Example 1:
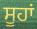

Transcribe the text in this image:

ਸੂਹਾਂ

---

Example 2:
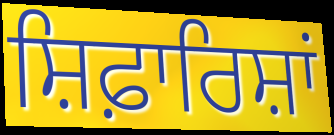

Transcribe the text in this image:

ਸ਼ਿਫ਼ਾਰਿਸ਼ਾਂ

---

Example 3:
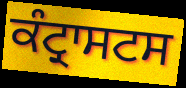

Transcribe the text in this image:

ਕੰਟ੍ਰਾਸਟਸ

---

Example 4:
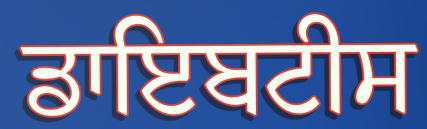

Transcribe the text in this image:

ਡਾਇਬਟੀਸ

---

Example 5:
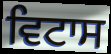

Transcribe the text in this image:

ਵਿਟਾਸ